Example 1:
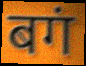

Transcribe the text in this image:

बगं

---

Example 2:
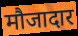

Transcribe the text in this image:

मौजादार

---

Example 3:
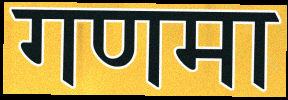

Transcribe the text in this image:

गणमा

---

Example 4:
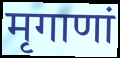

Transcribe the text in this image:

मृगाणां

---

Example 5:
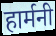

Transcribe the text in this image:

हार्मनी